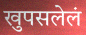
खुपसलेलं